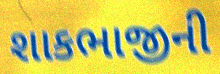
શાકભાજીની